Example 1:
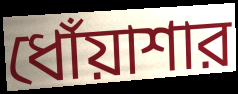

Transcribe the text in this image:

ধোঁয়াশার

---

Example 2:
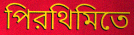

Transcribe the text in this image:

পিরথিমিতে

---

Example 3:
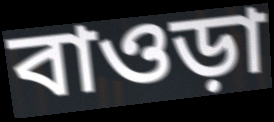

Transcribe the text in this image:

বাওড়া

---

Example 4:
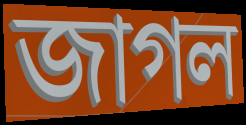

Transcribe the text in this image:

জাগল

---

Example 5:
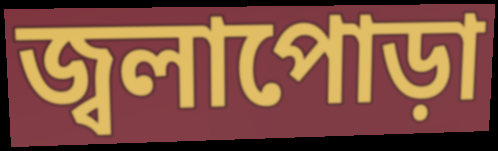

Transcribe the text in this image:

জ্বলাপোড়া